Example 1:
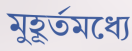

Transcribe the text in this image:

মুহূর্তমধ্যে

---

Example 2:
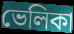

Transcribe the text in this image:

ভেলিকা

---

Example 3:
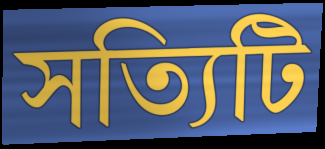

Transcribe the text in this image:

সত্যিটি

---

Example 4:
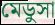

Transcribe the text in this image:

মেডুসা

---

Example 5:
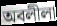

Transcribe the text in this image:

অবলীলা